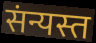
संन्यस्त